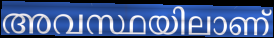
അവസ്ഥയിലാണ്